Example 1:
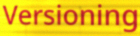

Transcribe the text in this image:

Versioning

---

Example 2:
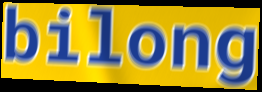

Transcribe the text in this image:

bilong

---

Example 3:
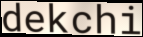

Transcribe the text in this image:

dekchi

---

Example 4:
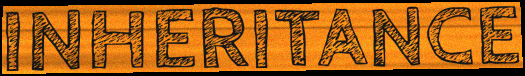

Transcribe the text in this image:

INHERITANCE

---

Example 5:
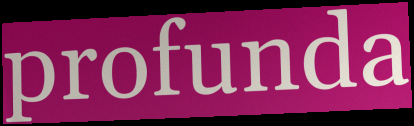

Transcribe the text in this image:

profunda